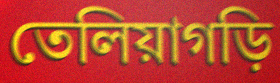
তেলিয়াগড়ি